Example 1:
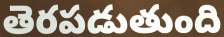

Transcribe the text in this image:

తెరపడుతుంది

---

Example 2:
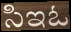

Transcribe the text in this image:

సిఇఓ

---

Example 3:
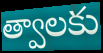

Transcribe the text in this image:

త్వాలకు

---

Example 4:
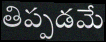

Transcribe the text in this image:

తిప్పడమే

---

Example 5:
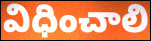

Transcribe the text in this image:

విధించాలి